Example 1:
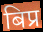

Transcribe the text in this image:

बिप्र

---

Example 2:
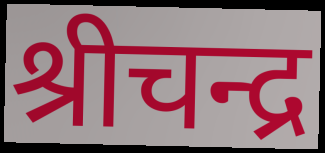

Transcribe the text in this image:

श्रीचन्द्र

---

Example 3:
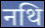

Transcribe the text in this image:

नथि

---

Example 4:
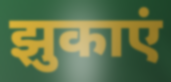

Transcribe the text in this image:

झुकाएं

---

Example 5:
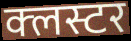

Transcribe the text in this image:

क्‍लस्‍टर